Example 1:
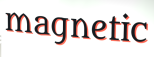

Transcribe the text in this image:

magnetic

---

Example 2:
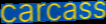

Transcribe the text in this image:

carcass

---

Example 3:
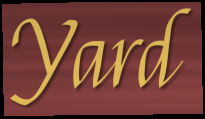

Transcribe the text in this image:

Yard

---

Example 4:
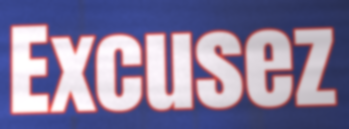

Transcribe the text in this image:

Excusez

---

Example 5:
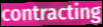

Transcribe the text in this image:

contracting